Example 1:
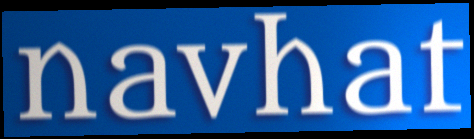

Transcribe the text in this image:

navhat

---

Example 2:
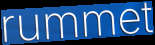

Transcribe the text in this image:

rummet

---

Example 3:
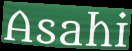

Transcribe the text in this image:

Asahi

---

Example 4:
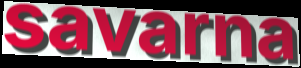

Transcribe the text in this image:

savarna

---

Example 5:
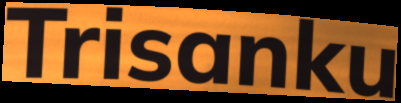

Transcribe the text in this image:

Trisanku